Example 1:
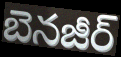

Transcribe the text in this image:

బెనజీర్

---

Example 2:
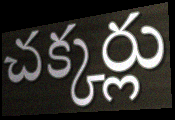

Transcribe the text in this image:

చక్కర్లు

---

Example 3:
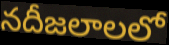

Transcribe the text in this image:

నదీజలాలలో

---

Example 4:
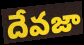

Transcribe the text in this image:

దేవజా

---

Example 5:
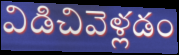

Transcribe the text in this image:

విడిచివెళ్లడం